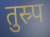
तुस्र्प